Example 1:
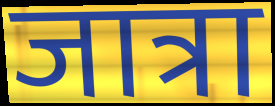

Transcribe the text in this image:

जात्रा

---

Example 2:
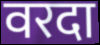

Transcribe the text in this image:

वरदा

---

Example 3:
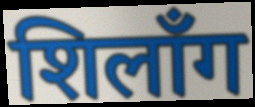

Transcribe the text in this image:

शिलाँग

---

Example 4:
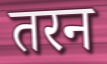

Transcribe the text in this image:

तरन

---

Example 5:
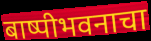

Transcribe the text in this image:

बाष्पीभवनाचा